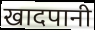
खादपानी